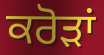
ਕਰੋਡ਼ਾਂ